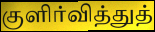
குளிர்வித்துத்